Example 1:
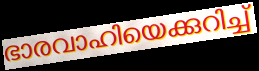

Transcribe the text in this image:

ഭാരവാഹിയെക്കുറിച്ച്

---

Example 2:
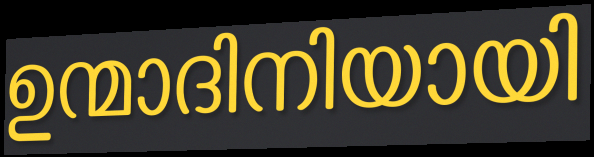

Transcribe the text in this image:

ഉന്മാദിനിയായി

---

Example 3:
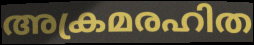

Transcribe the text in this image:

അക്രമരഹിത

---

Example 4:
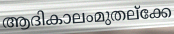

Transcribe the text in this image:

ആദികാലംമുതല്ക്കേ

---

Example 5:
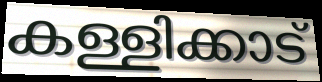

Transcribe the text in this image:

കള്ളിക്കാട്